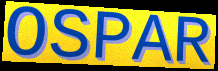
OSPAR